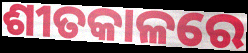
ଶୀତକାଳରେ